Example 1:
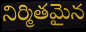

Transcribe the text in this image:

నిర్మితమైన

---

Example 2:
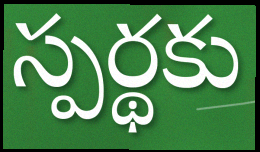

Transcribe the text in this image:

స్పర్థకు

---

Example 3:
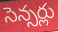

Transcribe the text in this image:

సెన్సర్లు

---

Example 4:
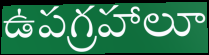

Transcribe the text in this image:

ఉపగ్రహాలూ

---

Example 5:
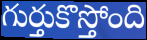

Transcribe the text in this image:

గుర్తుకొస్తోంది